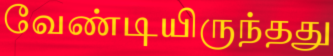
வேண்டியிருந்தது